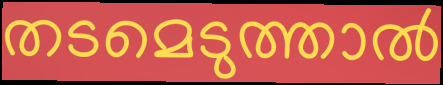
തടമെടുത്താൽ